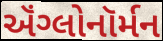
ઍંગ્લોનૉર્મન